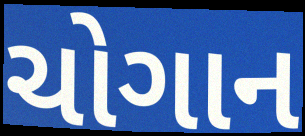
ચોગાન